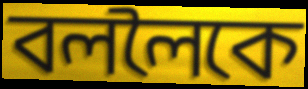
বললৈকে